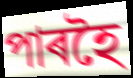
পাৰহৈ